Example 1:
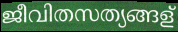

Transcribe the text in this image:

ജീവിതസത്യങ്ങള്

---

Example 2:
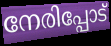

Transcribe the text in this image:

നേരിപ്പോട്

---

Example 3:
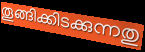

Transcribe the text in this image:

തൂങ്ങിക്കിടക്കുന്നതു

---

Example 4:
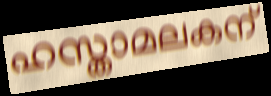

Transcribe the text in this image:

ഹസ്താമലകന്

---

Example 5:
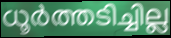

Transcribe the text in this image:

ധൂർത്തടിച്ചില്ല